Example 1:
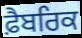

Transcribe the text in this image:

ਫ਼ੈਬਰਿਕ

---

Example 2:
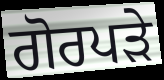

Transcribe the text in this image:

ਗੋਰਪੜੇ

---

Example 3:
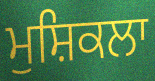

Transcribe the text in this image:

ਮੁਸ਼ਿਕਲਾ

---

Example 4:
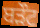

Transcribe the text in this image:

ਬੜੌਟ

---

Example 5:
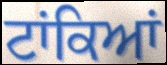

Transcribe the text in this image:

ਟਾਂਕਿਆਂ